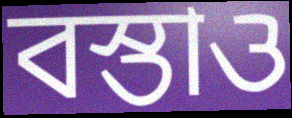
বস্তাও